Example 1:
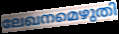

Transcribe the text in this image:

ലേഖനമെഴുതി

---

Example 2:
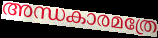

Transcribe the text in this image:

അന്ധകാരമത്രേ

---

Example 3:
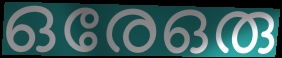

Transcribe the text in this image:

ഒരേഒരു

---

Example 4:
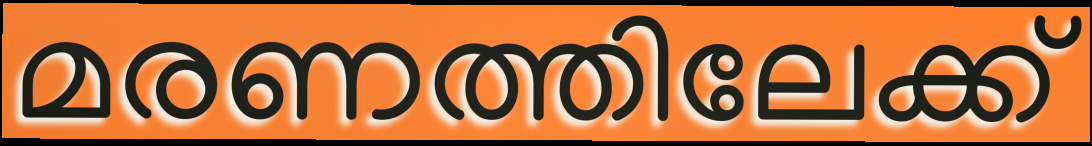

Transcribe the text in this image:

മരണത്തിലേക്ക്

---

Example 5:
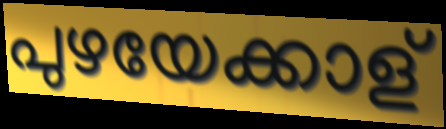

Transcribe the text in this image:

പുഴയേക്കാള്